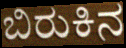
ಬಿರುಕಿನ